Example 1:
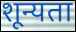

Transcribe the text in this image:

शून्‍यता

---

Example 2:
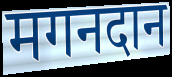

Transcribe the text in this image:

मगनदान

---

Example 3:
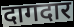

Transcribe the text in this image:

दागदार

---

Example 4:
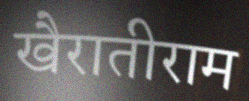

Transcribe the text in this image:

खैरातीराम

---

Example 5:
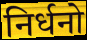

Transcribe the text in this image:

निर्धनो